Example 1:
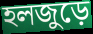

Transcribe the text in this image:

হলজুড়ে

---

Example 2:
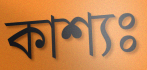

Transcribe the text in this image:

কাশ্যঃ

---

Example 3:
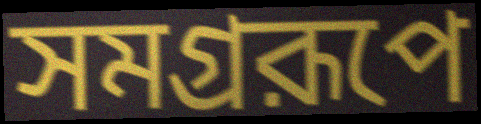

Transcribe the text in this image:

সমগ্ররূপে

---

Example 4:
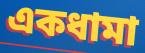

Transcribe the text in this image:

একধামা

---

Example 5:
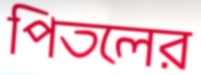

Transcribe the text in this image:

পিতলের